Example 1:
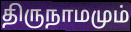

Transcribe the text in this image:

திருநாமமும்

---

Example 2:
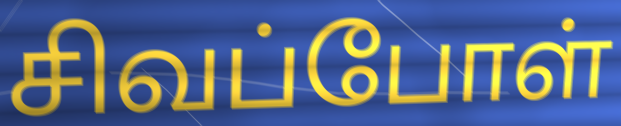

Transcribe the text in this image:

சிவப்போள்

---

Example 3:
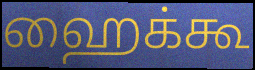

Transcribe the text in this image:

ஹைக்கூ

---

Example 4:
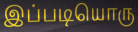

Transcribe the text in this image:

இப்படியொரு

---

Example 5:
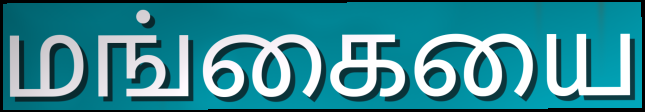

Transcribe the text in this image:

மங்கையை